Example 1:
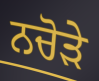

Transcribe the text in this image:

ਨਚੋੜੇ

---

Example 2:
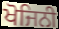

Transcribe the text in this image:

ਖੋਜਿਨੀ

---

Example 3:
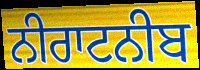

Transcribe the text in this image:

ਨੀਰਾਟਨੀਬ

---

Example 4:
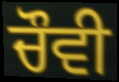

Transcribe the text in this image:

ਚੌਵੀ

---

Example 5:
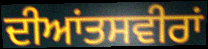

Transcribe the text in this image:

ਦੀਆਂਤਸਵੀਰਾਂ